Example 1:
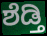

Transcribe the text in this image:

ಶೆಡ್ತಿ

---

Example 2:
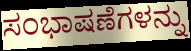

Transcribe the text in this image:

ಸಂಭಾಷಣೆಗಳನ್ನು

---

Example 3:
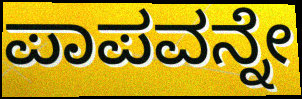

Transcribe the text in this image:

ಪಾಪವನ್ನೇ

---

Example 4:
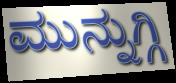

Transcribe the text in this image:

ಮುನ್ನುಗ್ಗಿ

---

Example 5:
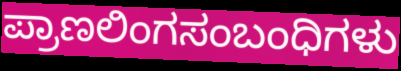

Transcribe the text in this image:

ಪ್ರಾಣಲಿಂಗಸಂಬಂಧಿಗಳು